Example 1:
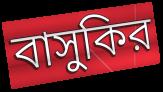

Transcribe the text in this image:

বাসুকির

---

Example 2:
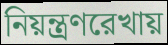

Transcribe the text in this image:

নিয়ন্ত্রণরেখায়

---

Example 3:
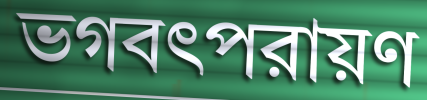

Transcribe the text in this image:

ভগবৎপরায়ণ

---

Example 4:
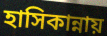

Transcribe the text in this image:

হাসিকান্নায়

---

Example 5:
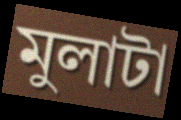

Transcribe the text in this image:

মুলাটা